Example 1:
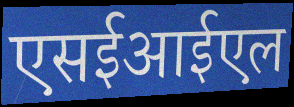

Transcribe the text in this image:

एसईआईएल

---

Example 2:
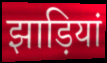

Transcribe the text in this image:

झाड़ियां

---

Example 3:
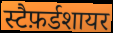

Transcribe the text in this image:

स्टैफ़र्डशायर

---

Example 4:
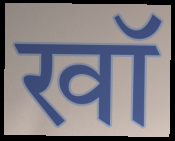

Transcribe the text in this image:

खॉ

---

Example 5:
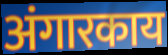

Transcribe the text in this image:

अंगारकाय